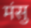
मंसु